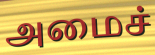
அமைச்